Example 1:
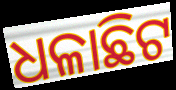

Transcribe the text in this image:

ଧଳାଛିଟ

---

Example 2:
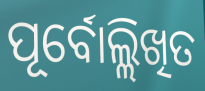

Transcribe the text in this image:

ପୂର୍ବୋଲ୍ଲିଖିତ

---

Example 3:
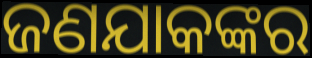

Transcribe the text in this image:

ଜଣଯାକଙ୍କର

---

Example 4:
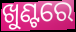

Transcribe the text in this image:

ଖୁଣ୍ଟରେ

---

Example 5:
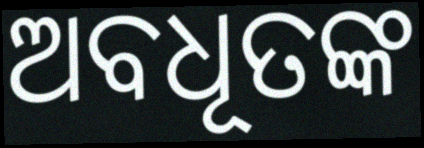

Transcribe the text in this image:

ଅବଧୂତଙ୍କ